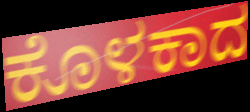
ಕೊಳಕಾದ